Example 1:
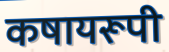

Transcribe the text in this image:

कषायरूपी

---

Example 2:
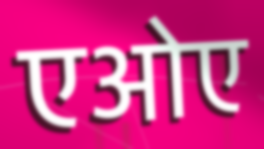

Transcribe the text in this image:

एओए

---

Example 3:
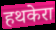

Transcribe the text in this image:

हथकेरा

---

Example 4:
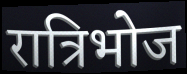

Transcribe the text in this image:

रात्रिभोज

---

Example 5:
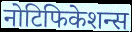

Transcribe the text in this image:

नोटिफिकेशन्स